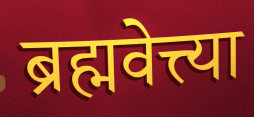
ब्रह्मवेत्त्या